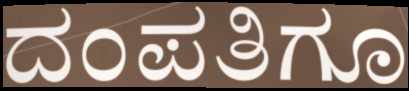
ದಂಪತಿಗೂ